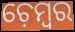
ଚ଼େମ୍ୱର